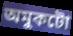
অমুকটো